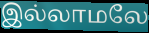
இல்லாமலே